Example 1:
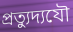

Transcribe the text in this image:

প্রত্যুদ্যযৌ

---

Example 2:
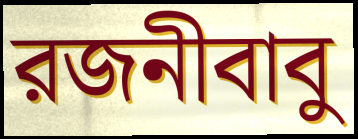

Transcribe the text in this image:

রজনীবাবু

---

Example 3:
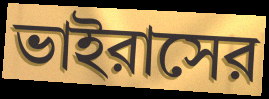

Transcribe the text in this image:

ভাইরাসের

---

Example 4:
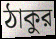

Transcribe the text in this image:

ঠাকুর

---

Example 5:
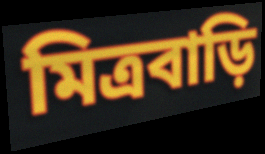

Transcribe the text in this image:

মিত্রবাড়ি